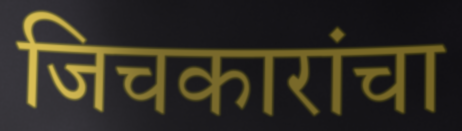
जिचकारांचा